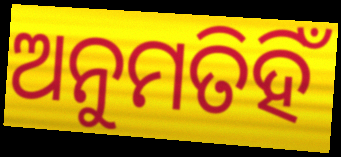
ଅନୁମତିହିଁ